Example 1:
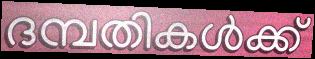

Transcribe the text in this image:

ദമ്പതികൾക്ക്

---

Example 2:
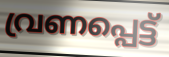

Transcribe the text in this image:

വ്രണപ്പെട്ട്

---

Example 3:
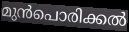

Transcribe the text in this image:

മുൻപൊരിക്കൽ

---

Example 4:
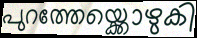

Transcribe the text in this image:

പുറത്തേയ്ക്കൊഴുകി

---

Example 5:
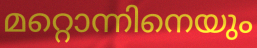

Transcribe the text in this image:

മറ്റൊന്നിനെയും